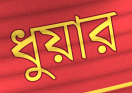
ধুয়ার